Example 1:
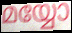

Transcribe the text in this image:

മയ്യോ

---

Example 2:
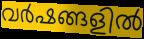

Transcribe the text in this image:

വർഷങ്ങളിൽ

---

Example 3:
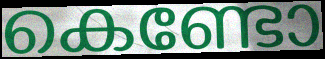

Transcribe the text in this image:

കെണ്ടോ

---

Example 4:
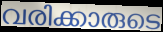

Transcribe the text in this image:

വരിക്കാരുടെ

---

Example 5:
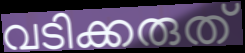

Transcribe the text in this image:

വടിക്കരുത്